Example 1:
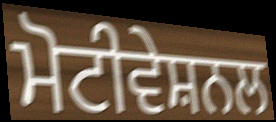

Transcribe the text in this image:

ਮੋਟੀਵੇਸ਼ਨਲ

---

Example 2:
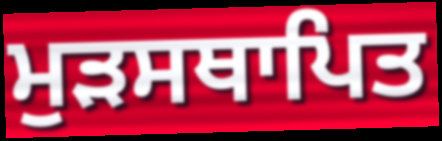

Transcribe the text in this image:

ਮੁੜਸਥਾਪਿਤ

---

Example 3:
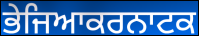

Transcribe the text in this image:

ਭੇਜਿਆਕਰਨਾਟਕ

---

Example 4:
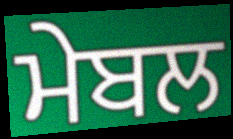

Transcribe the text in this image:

ਮੇਬਲ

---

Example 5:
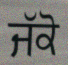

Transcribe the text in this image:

ਜੱਕੋ